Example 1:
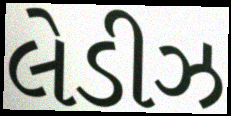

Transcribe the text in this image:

લેડીઝ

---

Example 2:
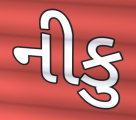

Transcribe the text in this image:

નીકુ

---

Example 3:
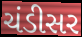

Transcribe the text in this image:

ચંડીસર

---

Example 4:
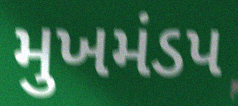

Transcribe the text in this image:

મુખમંડપ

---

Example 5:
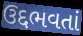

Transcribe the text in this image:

ઉદ્દભવતાં